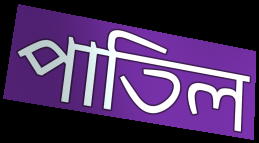
পাতিল